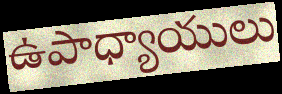
ఉపాధ్యాయులు